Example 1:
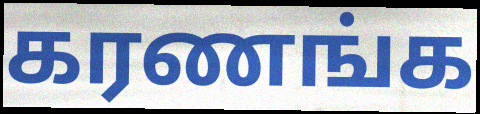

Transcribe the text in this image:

கரணங்க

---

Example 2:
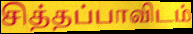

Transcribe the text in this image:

சித்தப்பாவிடம்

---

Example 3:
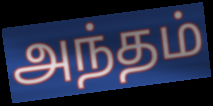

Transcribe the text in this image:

அந்தம்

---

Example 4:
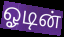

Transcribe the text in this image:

ஓடின்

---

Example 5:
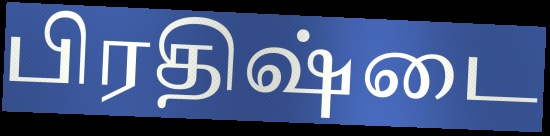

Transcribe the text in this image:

பிரதிஷ்டை